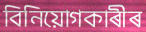
বিনিয়োগকাৰীৰ